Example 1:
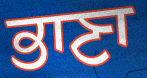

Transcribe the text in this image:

ਭਾਣਾ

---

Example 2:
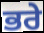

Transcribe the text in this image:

ਭਰੇ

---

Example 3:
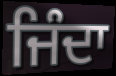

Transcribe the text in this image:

ਜਿੰਦਾ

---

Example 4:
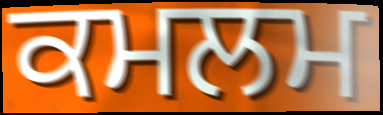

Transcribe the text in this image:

ਕਮਲਮ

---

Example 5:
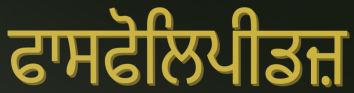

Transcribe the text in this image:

ਫਾਸਫੋਲਿਪੀਡਜ਼